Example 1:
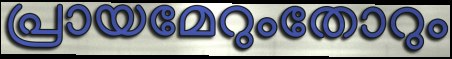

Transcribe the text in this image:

പ്രായമേറുംതോറും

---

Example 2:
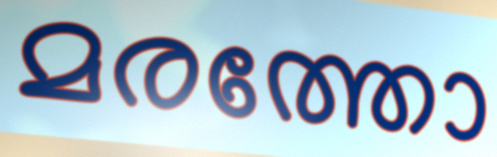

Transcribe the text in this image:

മരത്തോ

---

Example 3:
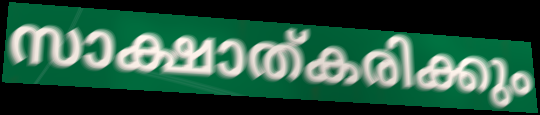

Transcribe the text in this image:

സാക്ഷാത്കരിക്കും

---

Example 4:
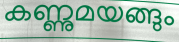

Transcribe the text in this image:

കണ്ണുമയങ്ങും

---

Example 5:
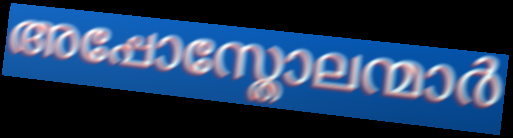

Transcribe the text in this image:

അപ്പോസ്തോലന്മാർ